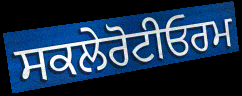
ਸਕਲੇਰੋਟੀਓਰਮ